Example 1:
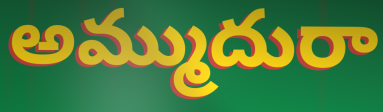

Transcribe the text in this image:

అమ్ముదురా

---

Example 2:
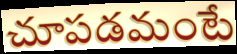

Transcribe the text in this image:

చూపడమంటే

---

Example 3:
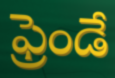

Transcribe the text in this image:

ఫ్రెండే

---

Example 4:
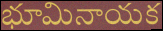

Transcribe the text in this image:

భూమినాయక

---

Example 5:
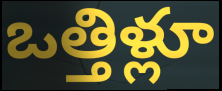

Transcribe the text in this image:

ఒత్తిళ్లూ